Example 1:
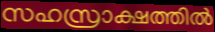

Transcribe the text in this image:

സഹസ്രാക്ഷത്തിൽ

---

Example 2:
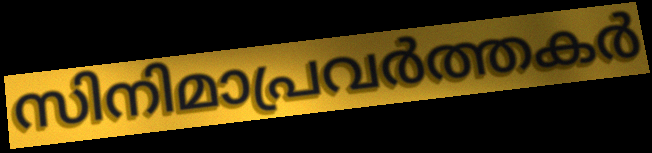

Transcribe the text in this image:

സിനിമാപ്രവർത്തകർ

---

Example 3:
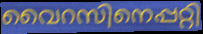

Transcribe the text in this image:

വൈറസിനെപ്പറ്റി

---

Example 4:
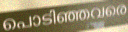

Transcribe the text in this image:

പൊടിഞ്ഞവരെ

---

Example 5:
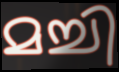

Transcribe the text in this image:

മച്ചി